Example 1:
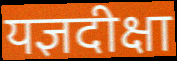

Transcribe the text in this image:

यज्ञदीक्षा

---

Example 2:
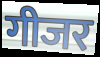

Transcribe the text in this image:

गीजर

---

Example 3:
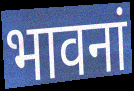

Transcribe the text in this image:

भावनां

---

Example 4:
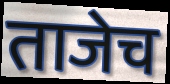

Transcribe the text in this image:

ताजेच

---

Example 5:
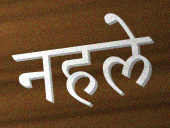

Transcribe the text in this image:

नहले